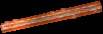
ജീവിതശൈലിയിലൂടെയും